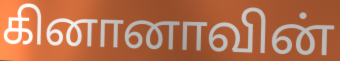
கினானாவின்